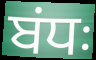
ਬਂਧਃ